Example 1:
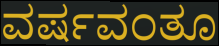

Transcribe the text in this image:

ವರ್ಷವಂತೂ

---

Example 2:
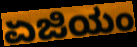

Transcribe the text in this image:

ಏಜಿಯಂ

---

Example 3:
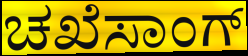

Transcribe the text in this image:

ಚಖೆಸಾಂಗ್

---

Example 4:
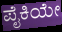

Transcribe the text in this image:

ಪೈಕಿಯೇ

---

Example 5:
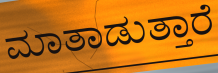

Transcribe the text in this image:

ಮಾತಾಡುತ್ತಾರೆ